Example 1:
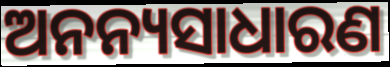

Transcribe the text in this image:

ଅନନ୍ୟସାଧାରଣ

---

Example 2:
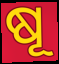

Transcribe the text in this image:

ଷୂ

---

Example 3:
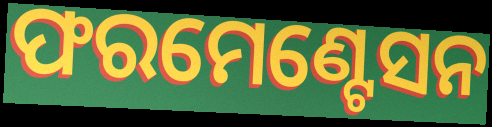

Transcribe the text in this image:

ଫରମେଣ୍ଟେସନ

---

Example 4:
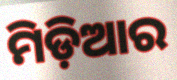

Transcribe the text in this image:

ମିଡ଼ିଆର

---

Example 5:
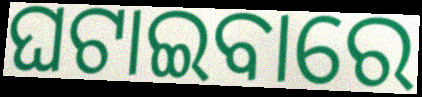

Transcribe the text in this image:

ଘଟାଇବାରେ